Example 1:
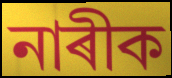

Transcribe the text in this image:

নাৰীক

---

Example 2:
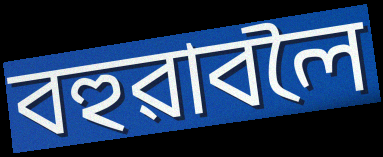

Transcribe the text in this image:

বহুৱাবলৈ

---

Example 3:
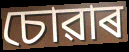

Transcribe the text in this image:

চোৱাৰ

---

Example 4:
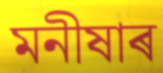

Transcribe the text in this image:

মনীষাৰ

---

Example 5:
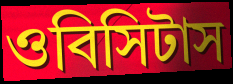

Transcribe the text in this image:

ওবিসিটাস